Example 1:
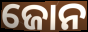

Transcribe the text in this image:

ଜୋନ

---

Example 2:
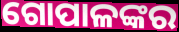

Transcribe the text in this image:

ଗୋପାଳଙ୍କର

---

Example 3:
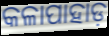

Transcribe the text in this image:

କଳାପାହାଡ଼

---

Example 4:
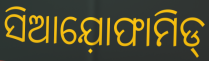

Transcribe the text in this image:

ସିଆଯ଼ୋଫାମିଡ୍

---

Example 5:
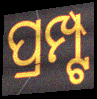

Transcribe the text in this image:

ପ୍ରମ୍ପ୍ଟ